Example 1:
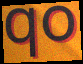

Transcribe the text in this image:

qo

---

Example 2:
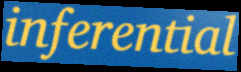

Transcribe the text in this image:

inferential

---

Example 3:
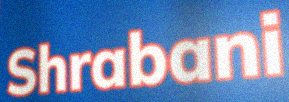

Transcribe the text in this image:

Shrabani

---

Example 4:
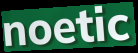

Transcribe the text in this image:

noetic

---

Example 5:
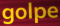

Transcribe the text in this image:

golpe